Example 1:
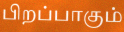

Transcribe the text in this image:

பிறப்பாகும்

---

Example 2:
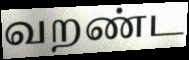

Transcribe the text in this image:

வறண்ட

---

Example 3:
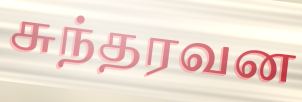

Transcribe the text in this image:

சுந்தரவன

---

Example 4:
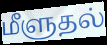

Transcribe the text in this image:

மீளுதல்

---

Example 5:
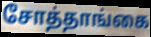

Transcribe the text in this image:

சோத்தாங்கை